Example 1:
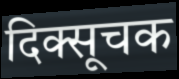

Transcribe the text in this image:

दिक्सूचक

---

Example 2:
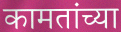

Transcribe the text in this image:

कामतांच्या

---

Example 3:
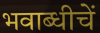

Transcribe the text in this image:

भवाब्धीचें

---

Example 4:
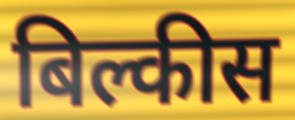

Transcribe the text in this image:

बिल्कीस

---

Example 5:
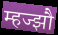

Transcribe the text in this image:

म्हज्झौ